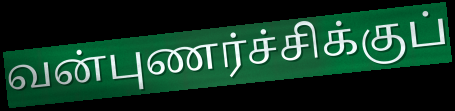
வன்புணர்ச்சிக்குப்